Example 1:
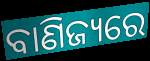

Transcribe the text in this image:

ବାଣିଜ୍ୟରେ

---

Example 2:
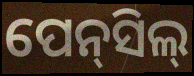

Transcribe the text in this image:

ପେନ୍‌ସିଲ୍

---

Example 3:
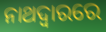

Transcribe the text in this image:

ନାଥଦ୍ୱାରରେ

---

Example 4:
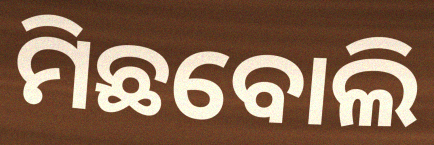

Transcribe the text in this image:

ମିଛବୋଲି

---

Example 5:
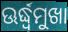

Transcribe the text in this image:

ଊର୍ଦ୍ଧ୍ବମୁଖା